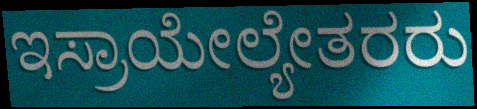
ಇಸ್ರಾಯೇಲ್ಯೇತರರು